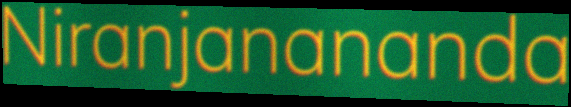
Niranjanananda